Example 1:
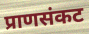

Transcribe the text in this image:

प्राणसंकट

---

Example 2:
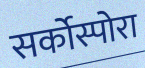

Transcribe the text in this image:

सर्कोस्पोरा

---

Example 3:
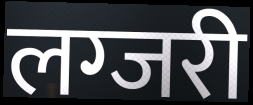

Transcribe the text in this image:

लग्‍जरी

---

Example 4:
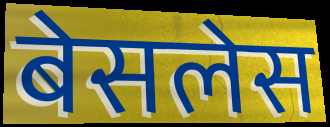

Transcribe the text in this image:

बेसलेस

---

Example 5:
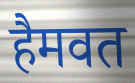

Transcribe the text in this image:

हैमवत